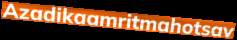
Azadikaamritmahotsav